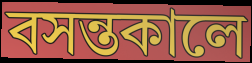
বসন্তকালে